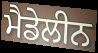
ਮੈਡੇਲੀਨ